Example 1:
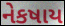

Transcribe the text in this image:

નેકષાય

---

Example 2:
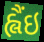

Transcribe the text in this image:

હ્લૈંઇ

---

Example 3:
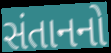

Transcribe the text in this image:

સંતાનનો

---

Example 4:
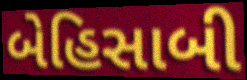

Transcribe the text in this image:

બેહિસાબી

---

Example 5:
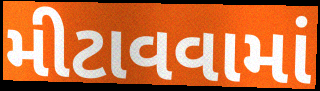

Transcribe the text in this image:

મીટાવવામાં